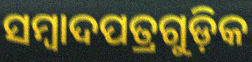
ସମ୍ୱାଦପତ୍ରଗୁଡ଼ିକ